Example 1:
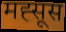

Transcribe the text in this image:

मह्सूस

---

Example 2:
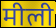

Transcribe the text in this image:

मीली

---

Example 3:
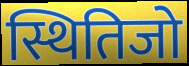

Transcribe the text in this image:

स्थितिजो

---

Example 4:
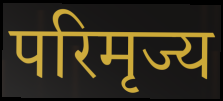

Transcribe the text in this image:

परिमृज्य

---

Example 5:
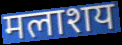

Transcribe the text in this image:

मलाशय